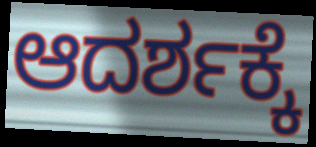
ಆದರ್ಶಕ್ಕೆ